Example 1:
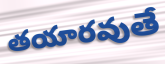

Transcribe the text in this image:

తయారవుతే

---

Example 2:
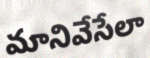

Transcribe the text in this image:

మానివేసేలా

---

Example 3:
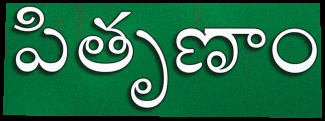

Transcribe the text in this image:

పితృణాం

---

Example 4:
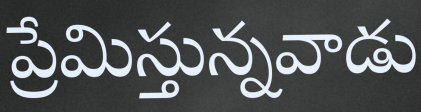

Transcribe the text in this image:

ప్రేమిస్తున్నవాడు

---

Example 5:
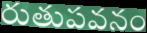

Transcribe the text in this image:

రుతుపవనం